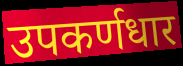
उपकर्णधार